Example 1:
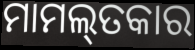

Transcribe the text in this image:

ମାମଲ୍‌ତକାର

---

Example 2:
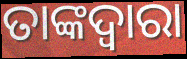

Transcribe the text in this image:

ତାଙ୍କଦ୍ୱାରା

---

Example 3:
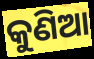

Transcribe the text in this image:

କୁଣିଆ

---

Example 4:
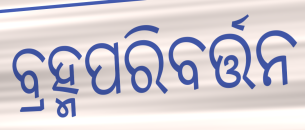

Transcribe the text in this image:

ବ୍ରହ୍ମପରିବର୍ତ୍ତନ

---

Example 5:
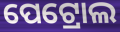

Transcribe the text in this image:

ପେଟ୍ରୋଲ